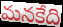
మనకేది